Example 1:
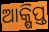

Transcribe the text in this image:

ଆକ୍ଷିପ୍ତ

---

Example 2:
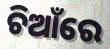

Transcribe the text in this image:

ଚିଆଁରେ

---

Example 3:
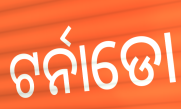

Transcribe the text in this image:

ଟର୍ନାଡୋ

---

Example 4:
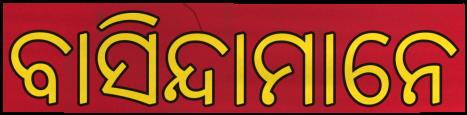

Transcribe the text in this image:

ବାସିନ୍ଦାମାନେ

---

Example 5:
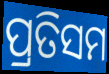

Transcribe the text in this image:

ପ୍ରତିସମ